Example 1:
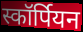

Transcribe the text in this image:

स्कॉर्पियन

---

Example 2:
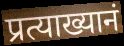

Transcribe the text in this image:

प्रत्याख्यानं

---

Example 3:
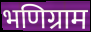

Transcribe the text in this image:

भणिग्राम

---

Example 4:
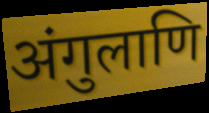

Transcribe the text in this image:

अंगुलाणि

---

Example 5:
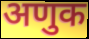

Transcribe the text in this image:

अणुक